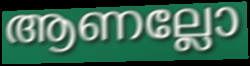
ആണല്ലോ